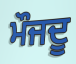
ਮੌਜਦੂ